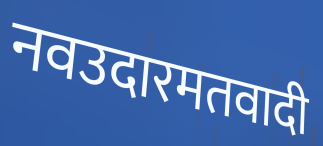
नवउदारमतवादी